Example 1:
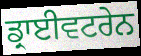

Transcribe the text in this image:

ਡ੍ਰਾਈਵਟਰੇਨ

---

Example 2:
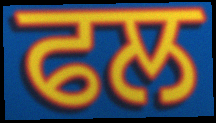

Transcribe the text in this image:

ਫਲ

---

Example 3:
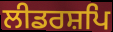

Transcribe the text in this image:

ਲੀਡਰਸ਼ਪਿ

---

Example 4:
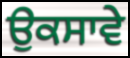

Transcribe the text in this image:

ਉਕਸਾਵੇ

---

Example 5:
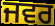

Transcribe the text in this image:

ਜਵਰ